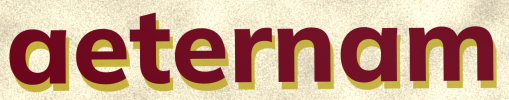
aeternam